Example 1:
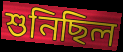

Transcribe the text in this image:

শুনিছিল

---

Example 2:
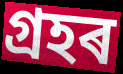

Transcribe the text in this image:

গ্ৰহৰ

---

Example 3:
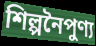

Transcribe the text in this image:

শিল্পনৈপুণ্য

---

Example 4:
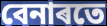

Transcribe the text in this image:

বেনাৰতে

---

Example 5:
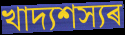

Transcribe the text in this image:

খাদ্যশস্যৰ